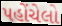
પહોંચેલો